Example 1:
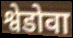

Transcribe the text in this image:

श्वेडोवा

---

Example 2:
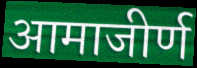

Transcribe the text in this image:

आमाजीर्ण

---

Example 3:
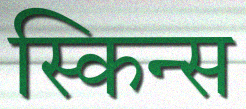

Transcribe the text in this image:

स्किन्स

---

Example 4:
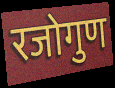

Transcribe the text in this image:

रजोगुण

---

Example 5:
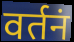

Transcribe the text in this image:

वर्तनं